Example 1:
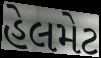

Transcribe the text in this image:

હેલમેટ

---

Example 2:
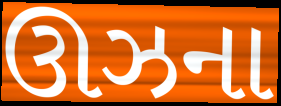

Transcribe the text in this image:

ઊઝના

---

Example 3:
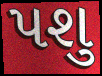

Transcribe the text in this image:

પશુ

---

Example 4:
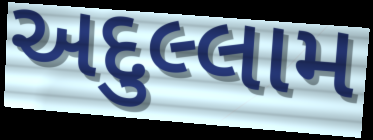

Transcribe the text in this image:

અદુલ્લામ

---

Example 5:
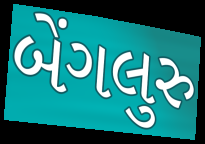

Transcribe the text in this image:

બેંગલુરુ